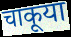
चाकूया